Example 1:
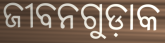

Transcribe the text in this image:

ଜୀବନଗୁଡ଼ାକ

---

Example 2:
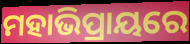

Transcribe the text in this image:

ମହାଭିପ୍ରାୟରେ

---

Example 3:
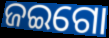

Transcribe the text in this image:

ଜଇଗୋ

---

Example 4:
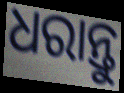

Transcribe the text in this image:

ଧରାନ୍ତୁ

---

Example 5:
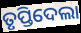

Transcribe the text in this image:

ତୃପ୍ତିଦେଲା